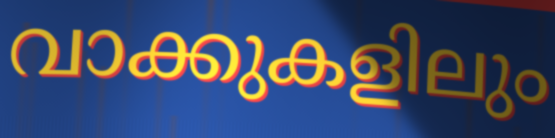
വാക്കുകളിലും